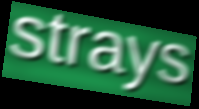
strays